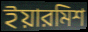
ইয়ারমিশ